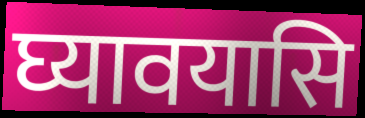
घ्यावयासि